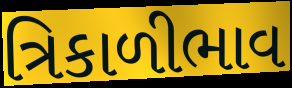
ત્રિકાળીભાવ